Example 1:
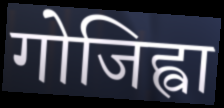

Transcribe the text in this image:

गोजिह्वा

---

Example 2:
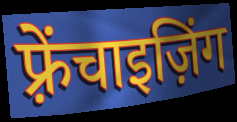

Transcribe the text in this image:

फ़्रेंचाइज़िंग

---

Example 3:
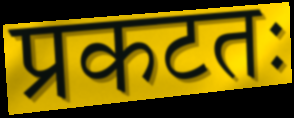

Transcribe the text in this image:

प्रकटतः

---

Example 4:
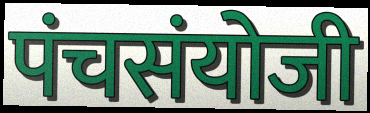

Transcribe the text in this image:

पंचसंयोजी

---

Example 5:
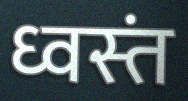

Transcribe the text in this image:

ध्वस्तं